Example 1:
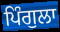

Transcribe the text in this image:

ਪਿੰਗੁਲਾ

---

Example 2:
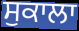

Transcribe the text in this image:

ਸੁਕਾਲਾ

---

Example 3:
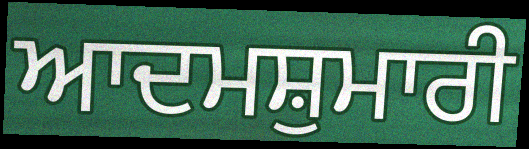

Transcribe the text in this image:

ਆਦਮਸ਼ੁਮਾਰੀ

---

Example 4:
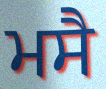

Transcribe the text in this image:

ਮਸੈ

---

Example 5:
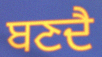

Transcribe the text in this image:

ਬਣਦੈ